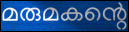
മരുമകന്റെ